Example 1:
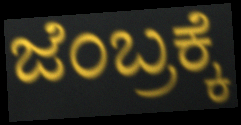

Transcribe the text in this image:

ಜೆಂಬ್ರಕ್ಕೆ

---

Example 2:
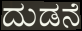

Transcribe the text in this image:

ದುಡನೆ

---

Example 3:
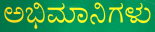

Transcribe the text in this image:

ಅಭಿಮಾನಿಗಳು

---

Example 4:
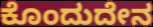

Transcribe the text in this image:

ಕೊಂದುದೇನ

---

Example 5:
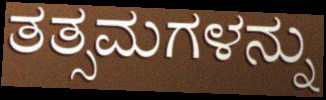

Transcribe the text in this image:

ತತ್ಸಮಗಳನ್ನು